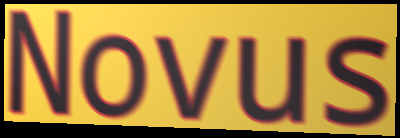
Novus